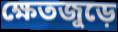
ক্ষেতজুড়ে